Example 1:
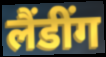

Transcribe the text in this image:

लैंडींग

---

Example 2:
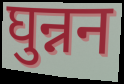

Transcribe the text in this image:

घुन्नन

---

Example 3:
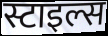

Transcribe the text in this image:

स्टाइल्स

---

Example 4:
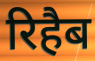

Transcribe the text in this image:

रिहैब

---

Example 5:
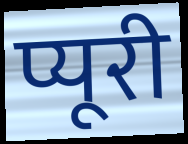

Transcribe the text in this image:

प्यूरी